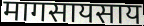
मागसायसाय